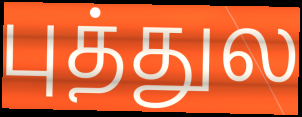
புத்துல